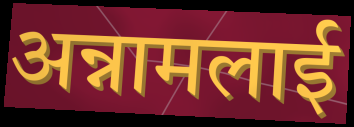
अन्नामलाई